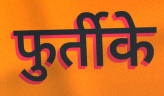
फुर्तीके